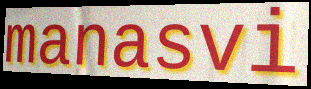
manasvi